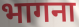
भागना